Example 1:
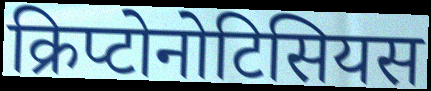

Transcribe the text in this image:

क्रिप्टोनोटिसियस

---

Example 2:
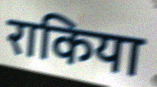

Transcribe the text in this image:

राकिया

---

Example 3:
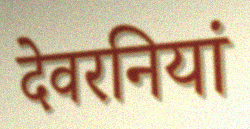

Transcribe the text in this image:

देवरनियां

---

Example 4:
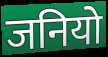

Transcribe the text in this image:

जनियो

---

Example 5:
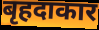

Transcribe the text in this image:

बृहदाकार